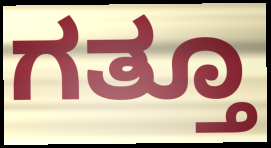
ಗತ್ತೂ